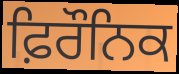
ਫ਼ਿਰੌਨਿਕ